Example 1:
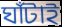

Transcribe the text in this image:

ঘাঁটাই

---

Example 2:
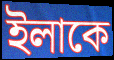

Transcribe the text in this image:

ইলাকে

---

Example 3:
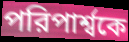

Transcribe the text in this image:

পরিপার্শ্বকে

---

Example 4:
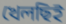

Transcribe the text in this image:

খেলছিই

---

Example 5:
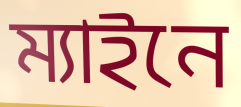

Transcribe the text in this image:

ম্যাইনে